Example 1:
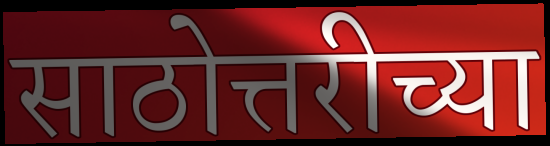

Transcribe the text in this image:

साठोत्तरीच्या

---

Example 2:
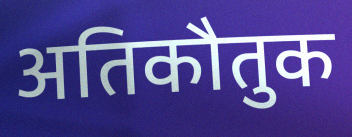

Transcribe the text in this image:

अतिकौतुक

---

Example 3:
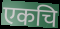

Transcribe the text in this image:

एकचि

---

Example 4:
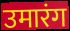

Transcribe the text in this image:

उमारंग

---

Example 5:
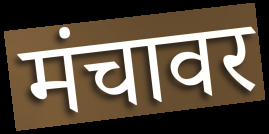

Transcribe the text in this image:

मंचावर